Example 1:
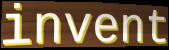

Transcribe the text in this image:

invent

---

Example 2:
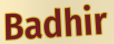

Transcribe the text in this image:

Badhir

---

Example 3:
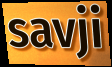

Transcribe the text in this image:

savji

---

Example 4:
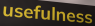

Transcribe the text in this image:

usefulness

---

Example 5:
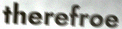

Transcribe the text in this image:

therefroe